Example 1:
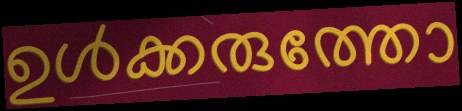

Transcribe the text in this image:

ഉൾക്കരുത്തോ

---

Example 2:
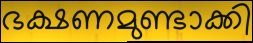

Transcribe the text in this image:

ഭക്ഷണമുണ്ടാക്കി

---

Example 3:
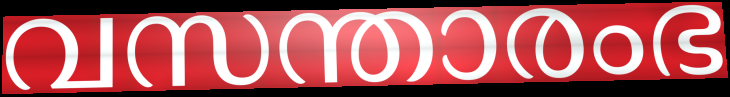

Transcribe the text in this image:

വസന്താരംഭ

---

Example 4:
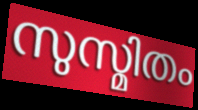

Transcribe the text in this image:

സുസ്മിതം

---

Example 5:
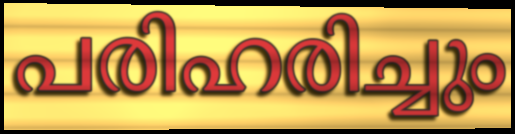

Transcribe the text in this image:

പരിഹരിച്ചും